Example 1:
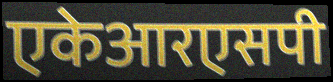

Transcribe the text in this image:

एकेआरएसपी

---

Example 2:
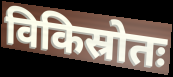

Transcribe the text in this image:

विकिस्रोतः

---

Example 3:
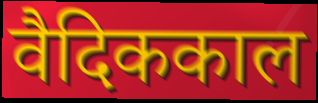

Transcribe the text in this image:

वैदिककाल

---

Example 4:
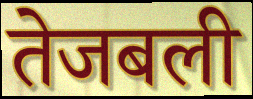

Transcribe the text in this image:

तेजबली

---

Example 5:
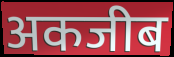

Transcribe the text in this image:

अकजीब